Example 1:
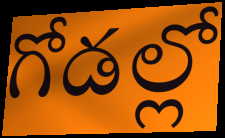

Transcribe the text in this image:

గోడల్లో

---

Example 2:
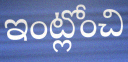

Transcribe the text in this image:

ఇంట్లోంచి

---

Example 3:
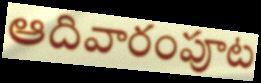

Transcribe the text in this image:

ఆదివారంపూట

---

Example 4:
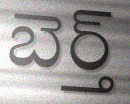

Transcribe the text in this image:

బెర్త్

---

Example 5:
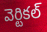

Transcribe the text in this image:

వెర్టికల్